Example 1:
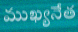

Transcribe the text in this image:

ముఖ్యనేత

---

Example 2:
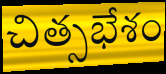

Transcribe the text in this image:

చిత్సభేశం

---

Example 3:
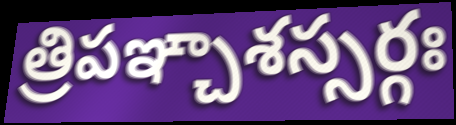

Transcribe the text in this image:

త్రిపఞ్చాశస్సర్గః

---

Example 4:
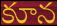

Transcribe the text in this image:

కూన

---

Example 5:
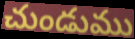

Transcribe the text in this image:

చుండుము